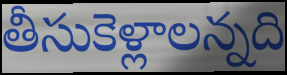
తీసుకెళ్లాలన్నది